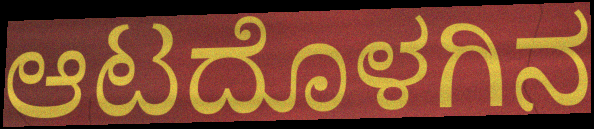
ಆಟದೊಳಗಿನ